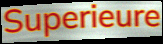
Superieure